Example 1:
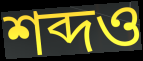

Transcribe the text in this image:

শব্দও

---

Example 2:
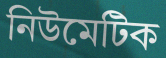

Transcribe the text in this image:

নিউমেটিক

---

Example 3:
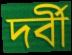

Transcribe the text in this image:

দর্বী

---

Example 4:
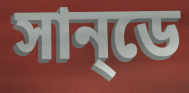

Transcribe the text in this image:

সান্‌ডে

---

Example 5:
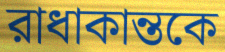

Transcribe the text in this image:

রাধাকান্তকে